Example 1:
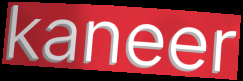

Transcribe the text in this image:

kaneer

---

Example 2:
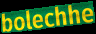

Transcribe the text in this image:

bolechhe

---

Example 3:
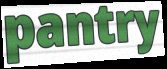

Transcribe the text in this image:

pantry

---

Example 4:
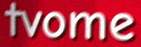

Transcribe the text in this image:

tvome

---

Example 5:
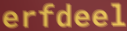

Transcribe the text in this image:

erfdeel